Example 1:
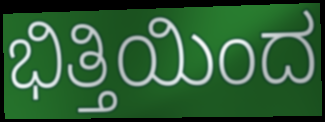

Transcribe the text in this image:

ಭಿತ್ತಿಯಿಂದ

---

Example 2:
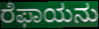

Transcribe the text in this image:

ರೆಫಾಯನು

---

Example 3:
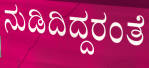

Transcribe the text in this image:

ನುಡಿದಿದ್ದರಂತೆ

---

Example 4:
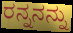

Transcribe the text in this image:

ರನ್ನನನ್ನು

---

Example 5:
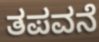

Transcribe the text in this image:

ತಪವನೆ